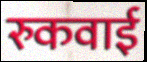
रुकवाई